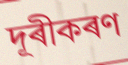
দূৰীকৰণ